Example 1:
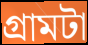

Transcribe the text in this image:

গ্রামটা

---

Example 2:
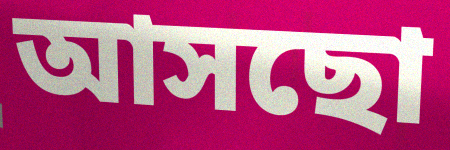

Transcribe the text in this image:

আসছো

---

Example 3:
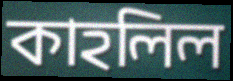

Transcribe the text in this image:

কাহলিল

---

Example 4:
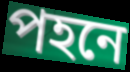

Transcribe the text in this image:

পহনে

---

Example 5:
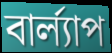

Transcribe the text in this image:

বার্ল্যাপ